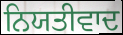
ਨਿਯਤੀਵਾਦ